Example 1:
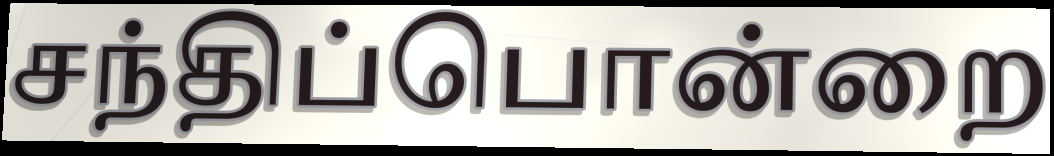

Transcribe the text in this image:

சந்திப்பொன்றை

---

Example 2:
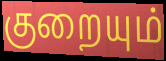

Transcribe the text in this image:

குறையும்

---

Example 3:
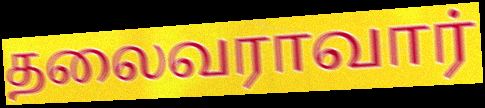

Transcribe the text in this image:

தலைவராவார்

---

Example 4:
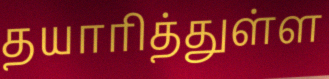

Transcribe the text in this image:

தயாரித்துள்ள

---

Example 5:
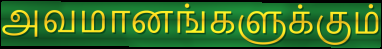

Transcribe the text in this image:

அவமானங்களுக்கும்